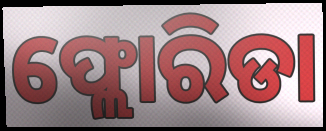
ଫ୍ଲୋରିଡା